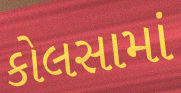
કોલસામાં